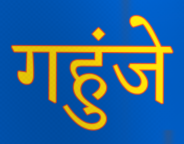
गहुंजे